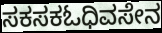
ಸಕಸಕಓಧಿವಸೇನ